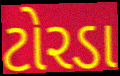
ટોરડા